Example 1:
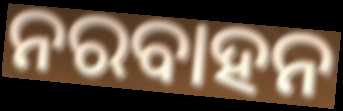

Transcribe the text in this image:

ନରବାହନ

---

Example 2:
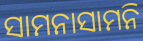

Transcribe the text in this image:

ସାମନାସାମନି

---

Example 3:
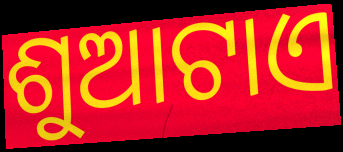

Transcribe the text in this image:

ଶୁଆଟାଏ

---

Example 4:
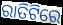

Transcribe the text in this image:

ରାତିଟିରେ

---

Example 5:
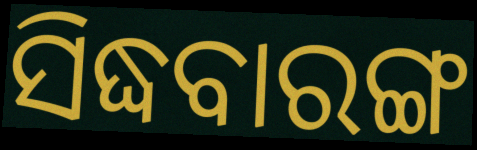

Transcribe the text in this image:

ସିଦ୍ଧବାରଙ୍ଗ